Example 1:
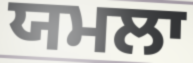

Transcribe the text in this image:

ਯਮਲਾ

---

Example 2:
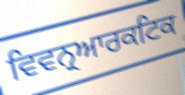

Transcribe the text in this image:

ਵਿਵਨ੍ਰਆਰਕਟਿਕ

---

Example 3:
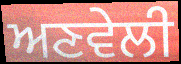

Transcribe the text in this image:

ਅਣਵੇਲੀ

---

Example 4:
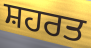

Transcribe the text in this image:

ਸ਼ਹਰਤ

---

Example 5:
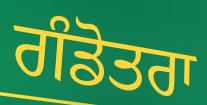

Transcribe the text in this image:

ਗੰਡੋਤਰਾ